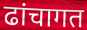
ढांचागत